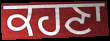
ਕਹਣਾ